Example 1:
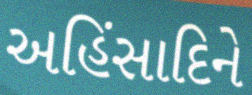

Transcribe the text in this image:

અહિંસાદિને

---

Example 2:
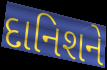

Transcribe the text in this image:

દાનિશને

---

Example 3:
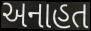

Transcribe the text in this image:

અનાહત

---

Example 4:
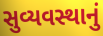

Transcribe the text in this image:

સુવ્યવસ્થાનું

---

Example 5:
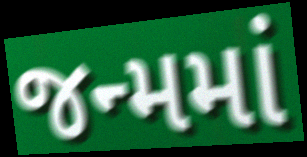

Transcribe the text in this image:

જન્મમાં